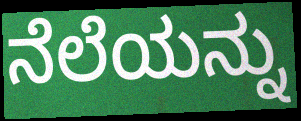
ನೆಲೆಯನ್ನು